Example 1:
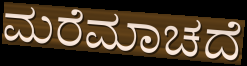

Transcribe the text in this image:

ಮರೆಮಾಚದೆ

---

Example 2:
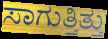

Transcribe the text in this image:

ಸಾಗುತ್ತಿತ್ತು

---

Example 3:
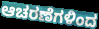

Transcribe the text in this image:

ಆಚರಣೆಗಳಿಂದ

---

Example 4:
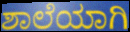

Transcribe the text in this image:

ಶಾಲೆಯಾಗಿ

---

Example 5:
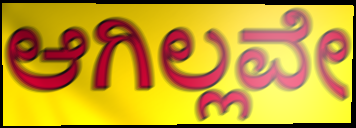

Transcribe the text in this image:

ಆಗಿಲ್ಲವೇ